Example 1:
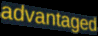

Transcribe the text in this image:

advantaged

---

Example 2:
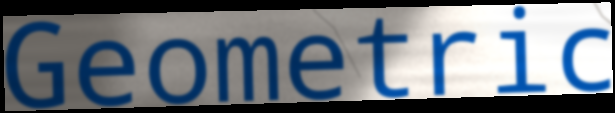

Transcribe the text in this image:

Geometric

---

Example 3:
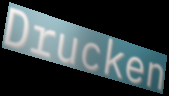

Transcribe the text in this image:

Drucken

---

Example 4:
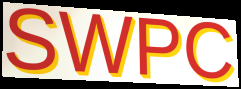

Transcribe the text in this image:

SWPC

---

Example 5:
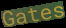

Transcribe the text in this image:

Gates